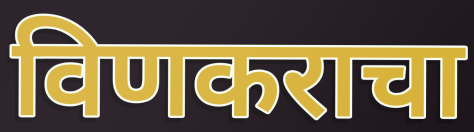
विणकराचा